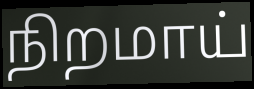
நிறமாய்